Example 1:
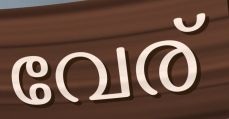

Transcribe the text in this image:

വേര്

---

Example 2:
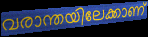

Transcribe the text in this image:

വരാന്തയിലേക്കാണ്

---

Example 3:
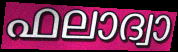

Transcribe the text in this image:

ഫലാദ്വാ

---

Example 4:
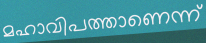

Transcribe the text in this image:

മഹാവിപത്താണെന്ന്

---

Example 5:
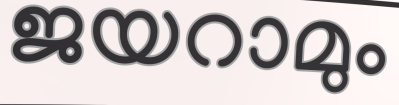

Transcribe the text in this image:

ജയറാമും